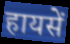
हायसें